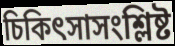
চিকিৎসাসংশ্লিষ্ট